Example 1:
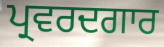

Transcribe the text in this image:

ਪ੍ਰਵਰਦਗਾਰ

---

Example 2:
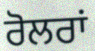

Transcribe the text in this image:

ਰੋਲਰਾਂ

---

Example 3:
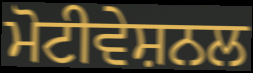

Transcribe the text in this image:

ਮੋਟੀਵੇਸ਼ਨਲ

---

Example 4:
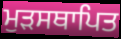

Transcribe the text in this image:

ਮੁੜਸਥਾਪਿਤ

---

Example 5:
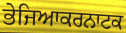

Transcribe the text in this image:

ਭੇਜਿਆਕਰਨਾਟਕ